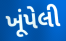
ખૂંપેલી